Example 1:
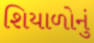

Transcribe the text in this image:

શિયાળોનું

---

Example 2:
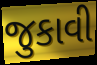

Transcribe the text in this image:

જુકાવી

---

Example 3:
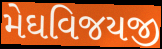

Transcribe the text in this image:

મેઘવિજયજી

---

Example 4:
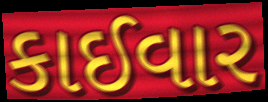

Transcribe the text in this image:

કાઈવાર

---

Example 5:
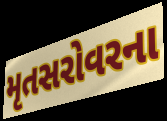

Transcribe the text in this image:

મૃતસરોવરના